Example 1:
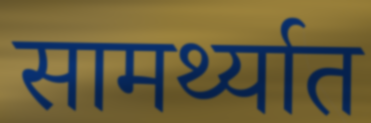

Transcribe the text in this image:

सामर्थ्यात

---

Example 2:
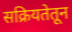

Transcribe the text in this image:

सक्रियतेतून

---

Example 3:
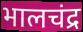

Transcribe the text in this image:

भालचंद्र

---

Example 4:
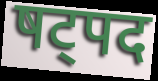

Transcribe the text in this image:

षट्पद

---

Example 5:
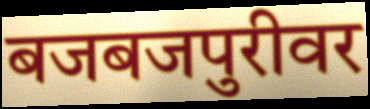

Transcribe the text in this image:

बजबजपुरीवर